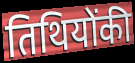
तिथियोंकी